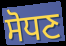
ਸੋਧਣ